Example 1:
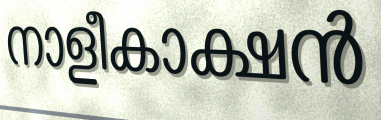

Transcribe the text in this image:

നാളീകാക്ഷൻ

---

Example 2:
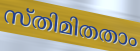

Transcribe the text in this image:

സ്തിമിതതാം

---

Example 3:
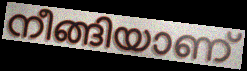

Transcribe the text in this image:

നീങ്ങിയാണ്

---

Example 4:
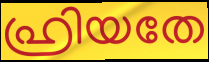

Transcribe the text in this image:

ഹ്രിയതേ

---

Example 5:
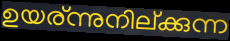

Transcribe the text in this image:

ഉയര്ന്നുനില്ക്കുന്ന